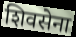
शिवसेना